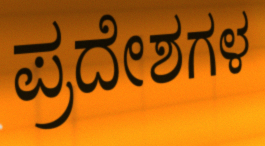
ಪ್ರದೇಶಗಳ